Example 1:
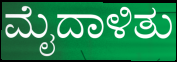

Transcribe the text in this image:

ಮೈದಾಳಿತು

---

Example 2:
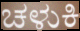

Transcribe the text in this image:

ಚಳುಕಿ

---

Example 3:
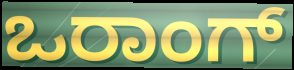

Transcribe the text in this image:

ಒರಾಂಗ್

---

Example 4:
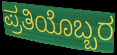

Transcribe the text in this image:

ಪ್ರತಿಯೊಬ್ಬರ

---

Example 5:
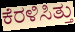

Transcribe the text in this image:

ಕೆರಳಿಸಿತ್ತು